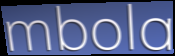
mbola